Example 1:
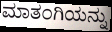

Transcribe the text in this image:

ಮಾತಂಗಿಯನ್ನು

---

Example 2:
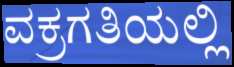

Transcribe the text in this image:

ವಕ್ರಗತಿಯಲ್ಲಿ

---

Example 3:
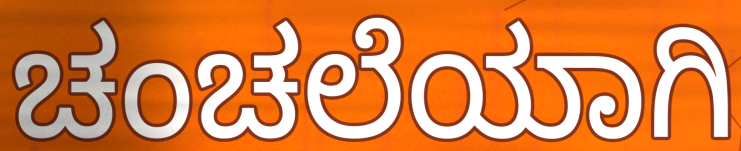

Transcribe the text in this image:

ಚಂಚಲೆಯಾಗಿ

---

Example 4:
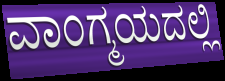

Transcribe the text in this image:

ವಾಂಗ್ಮಯದಲ್ಲಿ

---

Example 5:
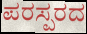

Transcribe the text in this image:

ಪರಸ್ಪರದ